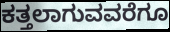
ಕತ್ತಲಾಗುವವರೆಗೂ